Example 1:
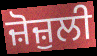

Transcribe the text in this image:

ਜ਼ੋਜ਼ੁਲੀ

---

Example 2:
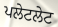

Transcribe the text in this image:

ਪਲੇਟਲੇਟ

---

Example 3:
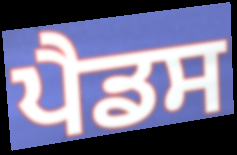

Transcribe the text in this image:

ਪੈਡਸ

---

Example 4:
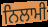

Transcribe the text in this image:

ਨਿਲਾਮੀ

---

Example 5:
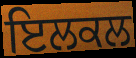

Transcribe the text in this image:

ਇਲਕਲ